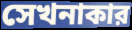
সেখনাকার